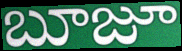
బూజూ